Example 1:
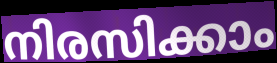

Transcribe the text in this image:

നിരസിക്കാം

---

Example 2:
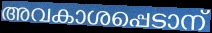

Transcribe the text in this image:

അവകാശപ്പെടാന്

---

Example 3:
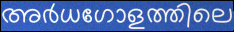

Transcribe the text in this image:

അർധഗോളത്തിലെ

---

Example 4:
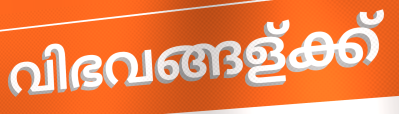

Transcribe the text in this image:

വിഭവങ്ങള്ക്ക്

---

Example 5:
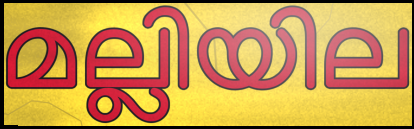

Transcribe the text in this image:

മല്ലിയില